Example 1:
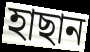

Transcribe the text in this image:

হাছান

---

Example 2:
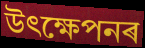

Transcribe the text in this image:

উৎক্ষেপনৰ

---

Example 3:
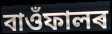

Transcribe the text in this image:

বাওঁফালৰ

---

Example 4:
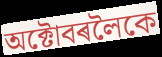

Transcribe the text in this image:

অক্টোবৰলৈকে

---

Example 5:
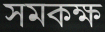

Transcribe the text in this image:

সমকক্ষ